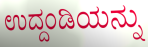
ಉದ್ದಂಡಿಯನ್ನು